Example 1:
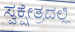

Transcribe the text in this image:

ಸ್ವಕ್ಷೇತ್ರದಲ್ಲಿ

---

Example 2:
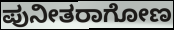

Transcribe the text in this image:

ಪುನೀತರಾಗೋಣ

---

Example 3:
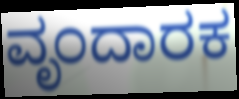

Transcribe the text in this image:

ವೃಂದಾರಕ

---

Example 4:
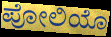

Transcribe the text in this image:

ಪೋಲಿಯೊ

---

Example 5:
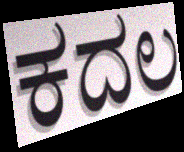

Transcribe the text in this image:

ಕದಲ